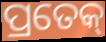
ପ୍ରତେକ୍